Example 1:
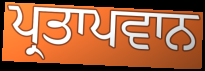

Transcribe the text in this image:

ਪ੍ਰਤਾਪਵਾਨ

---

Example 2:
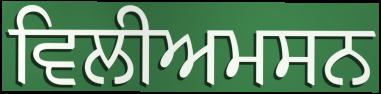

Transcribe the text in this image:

ਵਿਲੀਅਮਸਨ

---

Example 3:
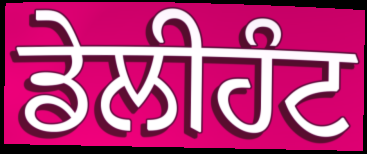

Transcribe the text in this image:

ਡੇਲੀਹੰਟ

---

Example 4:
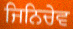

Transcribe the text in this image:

ਜਿਨਿਚੇਵ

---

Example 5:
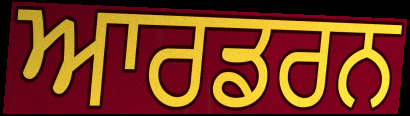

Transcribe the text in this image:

ਆਰਡਰਨ